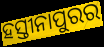
ହସ୍ତୀନାପୁରର